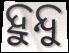
ହୁନ୍ଦୁ